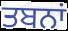
ਤਬਨਾਂ